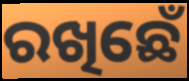
ରଖିଛେଁ